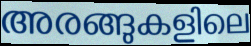
അരങ്ങുകളിലെ